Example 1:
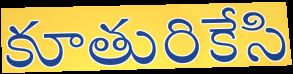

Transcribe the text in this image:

కూతురికేసి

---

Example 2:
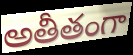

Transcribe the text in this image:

అతీతంగా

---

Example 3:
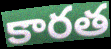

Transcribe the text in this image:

కారత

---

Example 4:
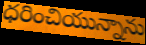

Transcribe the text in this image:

ధరించియున్నాను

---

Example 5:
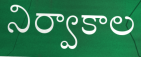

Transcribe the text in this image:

నిర్వాకాల